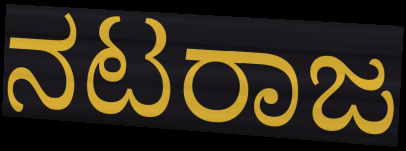
ನಟರಾಜ